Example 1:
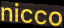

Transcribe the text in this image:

nicco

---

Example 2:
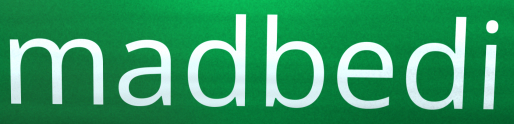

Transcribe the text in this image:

madbedi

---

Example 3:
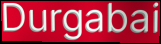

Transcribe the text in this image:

Durgabai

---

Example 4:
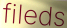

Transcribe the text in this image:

fileds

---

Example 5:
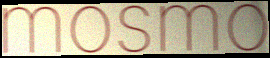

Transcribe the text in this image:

mosmo